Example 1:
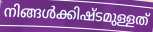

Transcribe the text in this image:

നിങ്ങൾക്കിഷ്ടമുള്ളത്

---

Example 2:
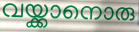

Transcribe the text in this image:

വയ്ക്കാനൊരു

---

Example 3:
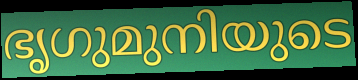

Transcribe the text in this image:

ഭൃഗുമുനിയുടെ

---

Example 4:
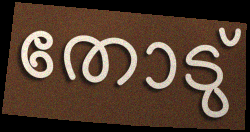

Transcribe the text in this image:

തോടു്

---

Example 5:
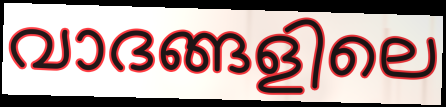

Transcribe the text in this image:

വാദങ്ങളിലെ